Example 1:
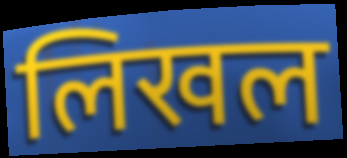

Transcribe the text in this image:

लिखल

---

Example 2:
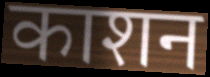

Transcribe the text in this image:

काशन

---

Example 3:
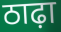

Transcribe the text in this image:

ठाढ़ा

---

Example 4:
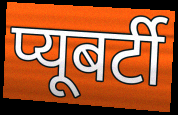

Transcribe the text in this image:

प्‍यूबर्टी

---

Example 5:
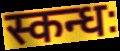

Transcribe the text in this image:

स्कन्धः